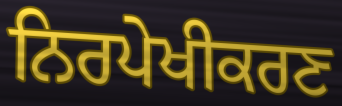
ਨਿਰਪੇਖੀਕਰਣ